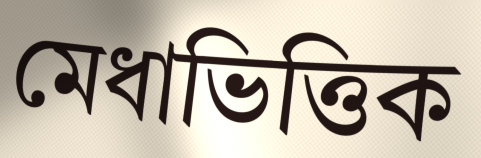
মেধাভিত্তিক